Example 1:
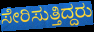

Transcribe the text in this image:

ಸೇರಿಸುತ್ತಿದ್ದರು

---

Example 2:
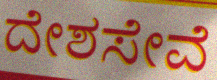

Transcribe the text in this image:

ದೇಶಸೇವೆ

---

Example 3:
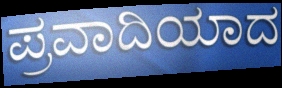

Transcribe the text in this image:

ಪ್ರವಾದಿಯಾದ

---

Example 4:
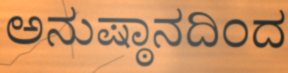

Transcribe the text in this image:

ಅನುಷ್ಠಾನದಿಂದ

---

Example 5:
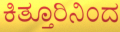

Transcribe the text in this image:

ಕಿತ್ತೂರಿನಿಂದ